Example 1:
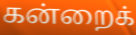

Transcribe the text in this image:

கன்றைக்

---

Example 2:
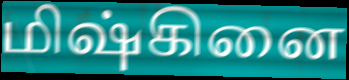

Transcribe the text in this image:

மிஷ்கினை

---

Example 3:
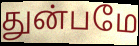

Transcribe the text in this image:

துன்பமே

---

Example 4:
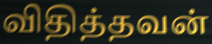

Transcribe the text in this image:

விதித்தவன்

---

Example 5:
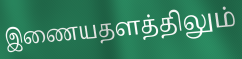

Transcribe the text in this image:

இணையதளத்திலும்